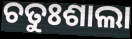
ଚତୁଃଶାଲା